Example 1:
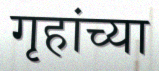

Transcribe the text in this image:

गृहांच्या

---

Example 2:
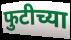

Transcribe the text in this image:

फुटीच्या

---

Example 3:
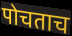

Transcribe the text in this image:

पोचताच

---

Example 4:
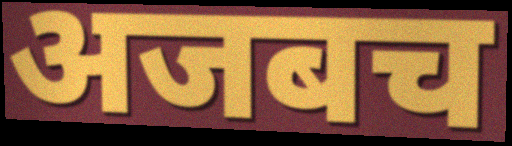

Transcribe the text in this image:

अजबच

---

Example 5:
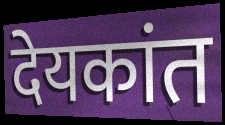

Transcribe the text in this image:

देयकांत